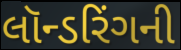
લૉન્ડરિંગની